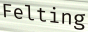
Felting